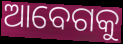
ଆବେଗକୁ